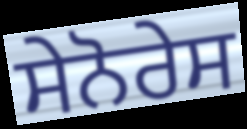
ਸੇਨੋਰੇਸ